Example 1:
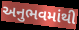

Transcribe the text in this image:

અનુભવમાંથી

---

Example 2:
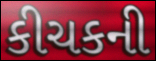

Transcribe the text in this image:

કીચકની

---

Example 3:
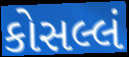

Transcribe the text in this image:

કોસલ્લં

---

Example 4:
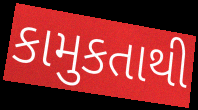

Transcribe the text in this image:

કામુકતાથી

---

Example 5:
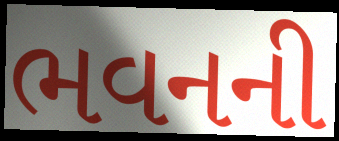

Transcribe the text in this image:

ભવનની